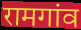
रामगांव